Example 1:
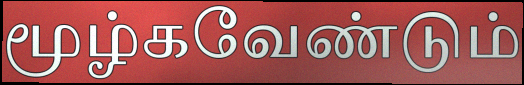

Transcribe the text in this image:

மூழ்கவேண்டும்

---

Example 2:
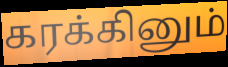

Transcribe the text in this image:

கரக்கினும்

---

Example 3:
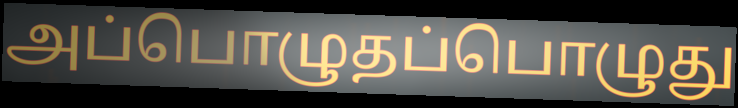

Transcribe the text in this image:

அப்பொழுதப்பொழுது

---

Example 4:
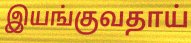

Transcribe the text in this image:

இயங்குவதாய்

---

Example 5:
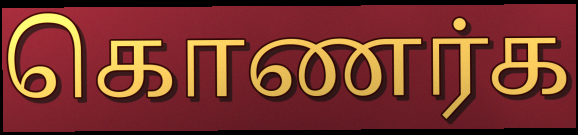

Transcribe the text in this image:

கொணர்க